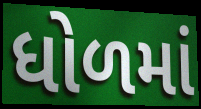
ધોળમાં